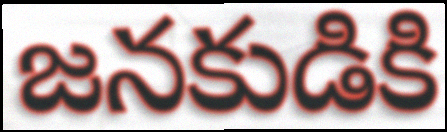
జనకుడికి